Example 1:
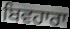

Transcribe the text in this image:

ਬਿਵਹਾਰਾ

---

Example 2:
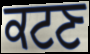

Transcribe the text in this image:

ਕਟਣ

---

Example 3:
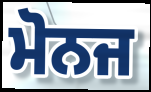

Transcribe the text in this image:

ਮੋਨਜ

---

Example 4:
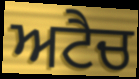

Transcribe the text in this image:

ਅਟੈਚ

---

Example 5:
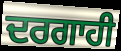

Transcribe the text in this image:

ਦਰਗਾਹੀ